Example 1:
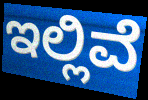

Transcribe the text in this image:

ಇಲ್ಲಿವೆ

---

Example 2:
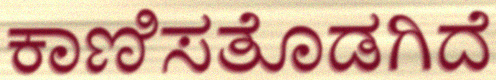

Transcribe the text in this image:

ಕಾಣಿಸತೊಡಗಿದೆ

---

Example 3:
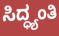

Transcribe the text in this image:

ಸಿದ್ಧ್ಯಂತಿ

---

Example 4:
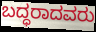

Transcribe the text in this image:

ಬದ್ಧರಾದವರು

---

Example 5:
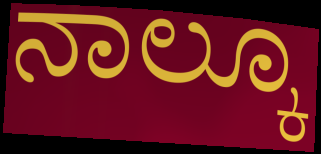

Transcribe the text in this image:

ನಾಲ್ಕೂ